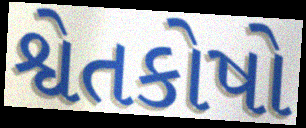
શ્વેતકોષો